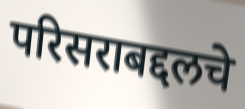
परिसराबद्दलचे